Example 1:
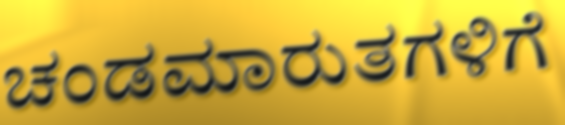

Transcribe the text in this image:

ಚಂಡಮಾರುತಗಳಿಗೆ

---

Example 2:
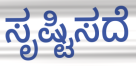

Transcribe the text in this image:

ಸೃಷ್ಟಿಸದೆ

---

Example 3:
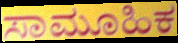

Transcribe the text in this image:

ಸಾಮೂಹಿಕ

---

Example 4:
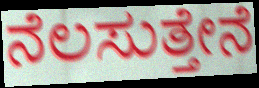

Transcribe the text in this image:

ನೆಲಸುತ್ತೇನೆ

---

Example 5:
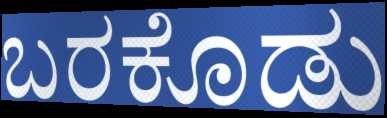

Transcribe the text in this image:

ಬರಕೊಡು